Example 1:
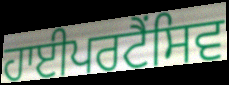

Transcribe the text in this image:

ਹਾਈਪਰਟੈਂਸਿਵ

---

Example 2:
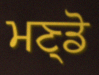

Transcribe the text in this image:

ਮਣ੍ਡੋ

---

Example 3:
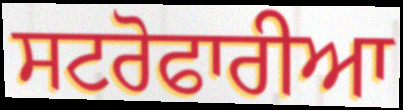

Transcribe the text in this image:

ਸਟਰੋਫਾਰੀਆ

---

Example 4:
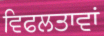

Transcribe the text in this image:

ਵਿਫਲਤਾਵਾਂ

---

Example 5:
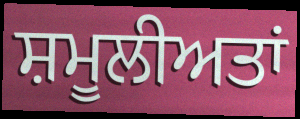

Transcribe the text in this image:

ਸ਼ਮੂਲੀਅਤਾਂ